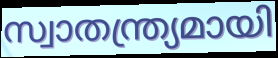
സ്വാതന്ത്ര്യമായി